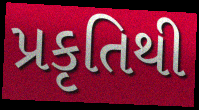
પ્રકૃતિથી